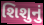
શિશુનું